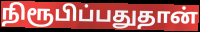
நிரூபிப்பதுதான்